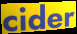
cider